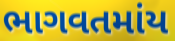
ભાગવતમાંય